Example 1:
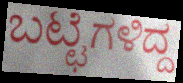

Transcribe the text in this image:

ಬಟ್ಟೆಗಳಿದ್ದ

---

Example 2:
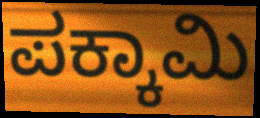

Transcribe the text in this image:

ಪಕ್ಕಾಮಿ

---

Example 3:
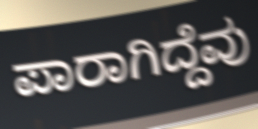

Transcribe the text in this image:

ಪಾರಾಗಿದ್ದೆವು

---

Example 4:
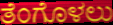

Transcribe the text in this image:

ತೆಂಗೊಳಲು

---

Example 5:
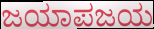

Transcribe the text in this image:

ಜಯಾಪಜಯ